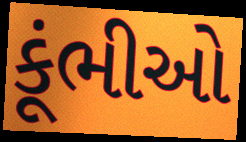
કૂંભીઓ